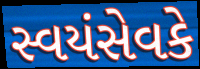
સ્વયંસેવકે